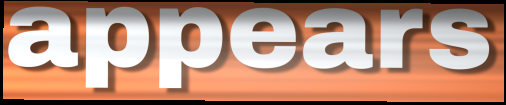
appears